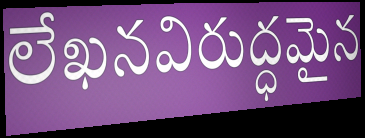
లేఖనవిరుద్ధమైన